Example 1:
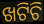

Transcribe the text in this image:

ଖଟିଚି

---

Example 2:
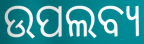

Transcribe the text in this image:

ଉପଲବ୍ୟ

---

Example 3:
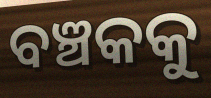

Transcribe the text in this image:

ବଞ୍ଚକକୁ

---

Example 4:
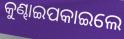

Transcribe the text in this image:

କୁଣ୍ଢାଇପକାଇଲେ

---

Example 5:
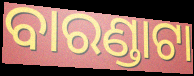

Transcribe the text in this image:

ବାରଣ୍ଡାଟା